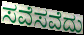
ಸವೆಸವೆದು